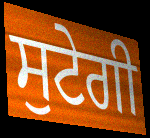
ਸੁਟੇਗੀ